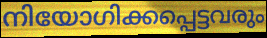
നിയോഗിക്കപ്പെട്ടവരും